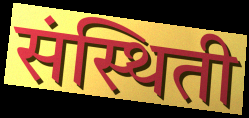
संस्थिती